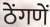
ठेंगणें